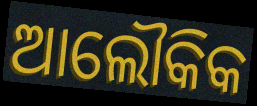
ଆଲୌକିକ